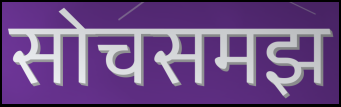
सोचसमझ